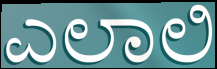
ಎಲಾಲಿ